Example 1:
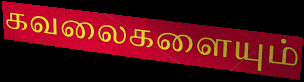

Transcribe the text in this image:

கவலைகளையும்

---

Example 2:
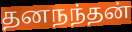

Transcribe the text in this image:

தனநந்தன்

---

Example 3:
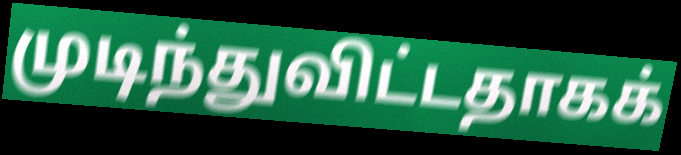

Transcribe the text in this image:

முடிந்துவிட்டதாகக்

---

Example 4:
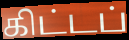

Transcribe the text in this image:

கிட்டப்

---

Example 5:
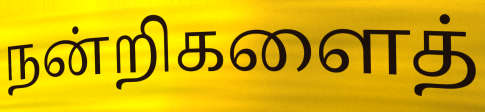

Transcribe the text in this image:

நன்றிகளைத்